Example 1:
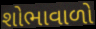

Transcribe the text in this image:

શોભાવાળો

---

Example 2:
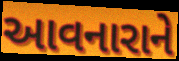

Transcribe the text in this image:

આવનારાને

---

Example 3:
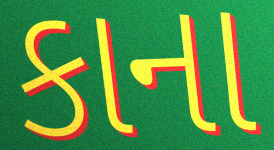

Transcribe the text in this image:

કાના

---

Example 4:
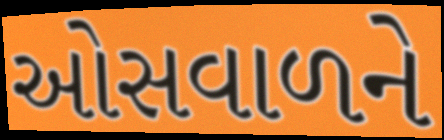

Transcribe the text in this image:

ઓસવાળને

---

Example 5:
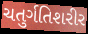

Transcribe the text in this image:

ચતુર્ગતિશરીર